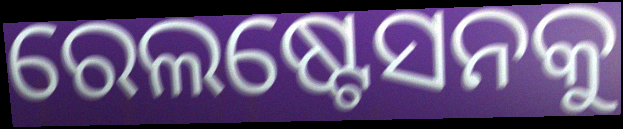
ରେଲଷ୍ଟେସନକୁ